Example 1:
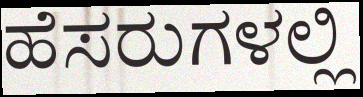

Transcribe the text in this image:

ಹೆಸರುಗಳಲ್ಲಿ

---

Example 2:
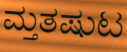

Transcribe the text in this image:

ಮ್ತತಷುಟ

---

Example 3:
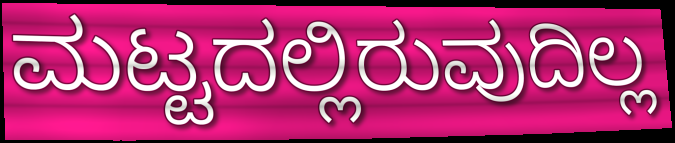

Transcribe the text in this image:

ಮಟ್ಟದಲ್ಲಿರುವುದಿಲ್ಲ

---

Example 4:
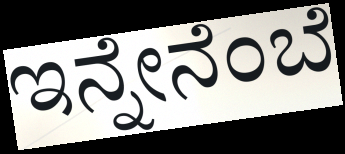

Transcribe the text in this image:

ಇನ್ನೇನೆಂಬೆ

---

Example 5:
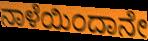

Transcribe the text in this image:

ನಾಳೆಯಿಂದಾನೇ